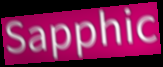
Sapphic